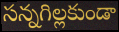
సన్నగిల్లకుండా